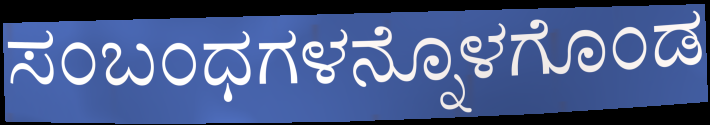
ಸಂಬಂಧಗಳನ್ನೊಳಗೊಂಡ